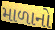
માળાનો